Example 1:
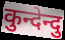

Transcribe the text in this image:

कुन्देन्दु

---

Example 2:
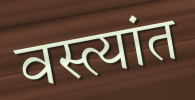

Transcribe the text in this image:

वस्त्यांत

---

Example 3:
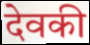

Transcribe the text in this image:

देवकी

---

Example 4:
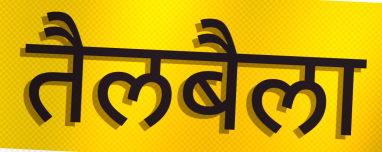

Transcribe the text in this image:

तैलबैला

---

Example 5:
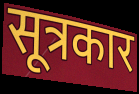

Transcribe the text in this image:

सूत्रकार